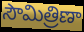
సౌమిత్రిణా